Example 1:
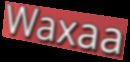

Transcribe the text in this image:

Waxaa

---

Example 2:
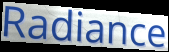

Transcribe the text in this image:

Radiance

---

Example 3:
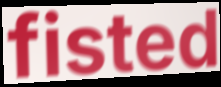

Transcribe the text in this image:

fisted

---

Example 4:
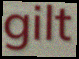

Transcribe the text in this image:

gilt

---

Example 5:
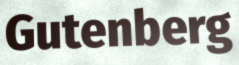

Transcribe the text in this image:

Gutenberg